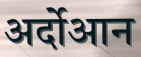
अर्दोआन